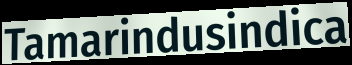
Tamarindusindica